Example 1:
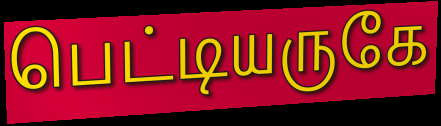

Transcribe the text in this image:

பெட்டியருகே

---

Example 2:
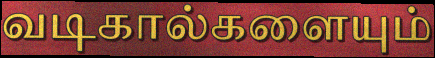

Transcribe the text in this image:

வடிகால்களையும்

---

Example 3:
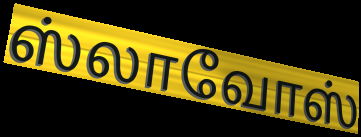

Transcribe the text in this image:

ஸ்லாவோஸ்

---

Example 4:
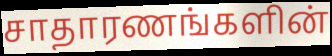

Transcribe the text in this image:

சாதாரணங்களின்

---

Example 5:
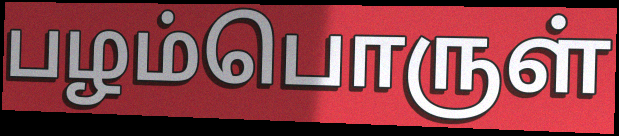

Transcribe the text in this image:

பழம்பொருள்